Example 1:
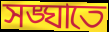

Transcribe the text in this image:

সঙ্ঘাতে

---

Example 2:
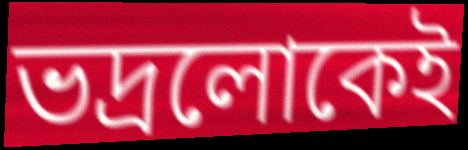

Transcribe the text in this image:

ভদ্রলোকেই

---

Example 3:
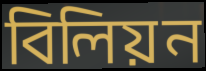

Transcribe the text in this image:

বিলিয়ন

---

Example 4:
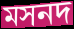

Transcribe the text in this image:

মসনদ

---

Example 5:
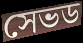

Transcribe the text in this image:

সেভড